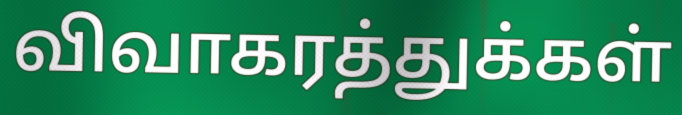
விவாகரத்துக்கள்